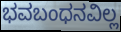
ಭವಬಂಧನವಿಲ್ಲ